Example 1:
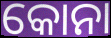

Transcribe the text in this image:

କୋନା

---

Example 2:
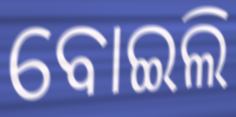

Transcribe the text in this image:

ବୋଇଲି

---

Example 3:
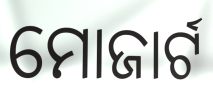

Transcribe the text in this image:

ମୋଜାର୍ଟ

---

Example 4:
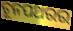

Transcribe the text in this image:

ଚୂନପଥରର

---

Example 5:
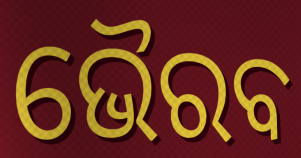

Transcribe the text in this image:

ଭୈରବ